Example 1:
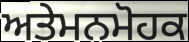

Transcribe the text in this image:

ਅਤੇਮਨਮੋਹਕ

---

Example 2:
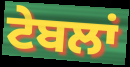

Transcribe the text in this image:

ਟੇਬਲਾਂ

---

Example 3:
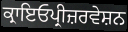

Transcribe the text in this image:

ਕ੍ਰਾਇਓਪ੍ਰੀਜ਼ਰਵੇਸ਼ਨ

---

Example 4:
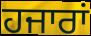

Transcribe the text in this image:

ਹਜਾਰਾਂ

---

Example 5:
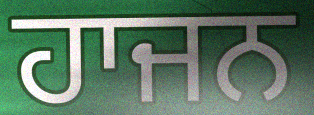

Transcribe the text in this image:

ਹਾਜਨ